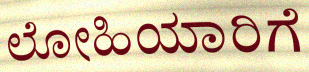
ಲೋಹಿಯಾರಿಗೆ